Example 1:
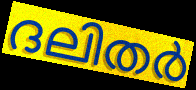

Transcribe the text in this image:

ദലിതർ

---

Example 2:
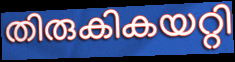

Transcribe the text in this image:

തിരുകികയറ്റി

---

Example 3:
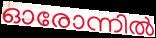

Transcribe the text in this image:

ഓരോന്നിൽ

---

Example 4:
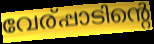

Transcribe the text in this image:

വേര്പ്പാടിന്റെ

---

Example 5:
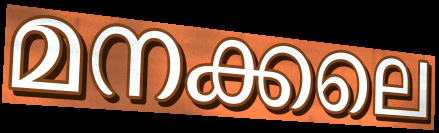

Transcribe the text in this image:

മനക്കലെ